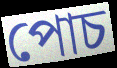
পোচ